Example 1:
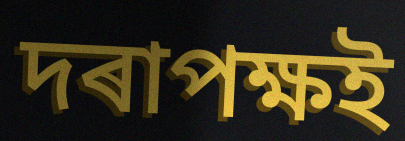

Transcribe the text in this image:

দৰাপক্ষই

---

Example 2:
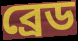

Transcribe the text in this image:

ব্ৰেড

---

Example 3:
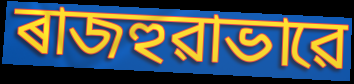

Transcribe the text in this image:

ৰাজহুৱাভাৱে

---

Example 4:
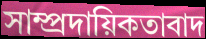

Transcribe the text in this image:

সাম্প্ৰদায়িকতাবাদ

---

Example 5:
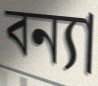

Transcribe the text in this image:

বন্যা